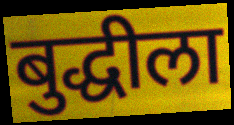
बुद्धीला